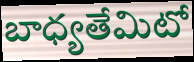
బాధ్యతేమిటో